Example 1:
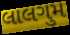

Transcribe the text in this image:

લાલગુમ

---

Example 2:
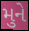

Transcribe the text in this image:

મુને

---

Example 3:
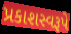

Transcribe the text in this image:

પ્રકાશસ્વરૂપે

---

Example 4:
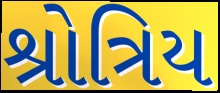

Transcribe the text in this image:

શ્રોત્રિય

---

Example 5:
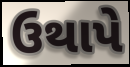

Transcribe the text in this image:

ઉથાપે